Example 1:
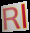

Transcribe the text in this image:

Rl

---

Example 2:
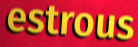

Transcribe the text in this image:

estrous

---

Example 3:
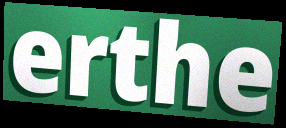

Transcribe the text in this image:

erthe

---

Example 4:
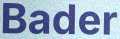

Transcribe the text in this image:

Bader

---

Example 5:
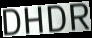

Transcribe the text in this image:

DHDR